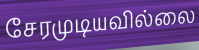
சேரமுடியவில்லை